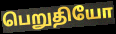
பெறுதியோ